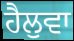
ਹੈਲੁਵਾ